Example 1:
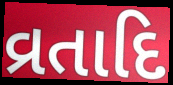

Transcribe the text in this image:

વ્રતાદિ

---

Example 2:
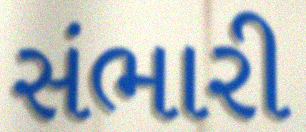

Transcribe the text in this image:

સંભારી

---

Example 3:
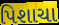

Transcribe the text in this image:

પિશાચા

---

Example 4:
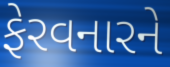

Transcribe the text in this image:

ફેરવનારને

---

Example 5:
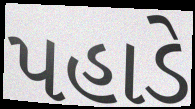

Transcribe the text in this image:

પહાડે